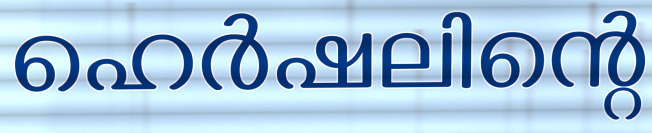
ഹെർഷലിന്റെ